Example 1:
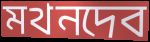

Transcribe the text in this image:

মথনদেব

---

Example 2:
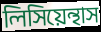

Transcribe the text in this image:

লিসিয়েন্থাস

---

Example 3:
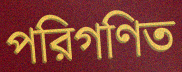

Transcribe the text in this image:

পরিগণিত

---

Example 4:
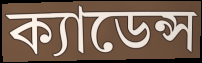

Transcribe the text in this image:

ক্যাডেন্স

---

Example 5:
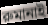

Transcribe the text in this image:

রুমানাই